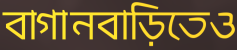
বাগানবাড়িতেও